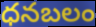
ధనబలం